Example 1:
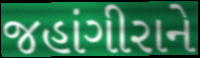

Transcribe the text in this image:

જહાંગીરાને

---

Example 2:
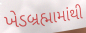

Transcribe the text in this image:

ખેડબ્રહ્મામાંથી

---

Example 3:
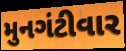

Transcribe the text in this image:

મુનગંટીવાર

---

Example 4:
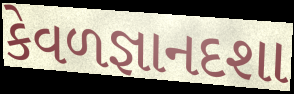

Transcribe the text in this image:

કેવળજ્ઞાનદશા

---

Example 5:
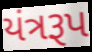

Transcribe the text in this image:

યંત્રરૂપ